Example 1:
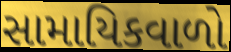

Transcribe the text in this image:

સામાયિકવાળો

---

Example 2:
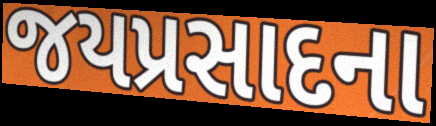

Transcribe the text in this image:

જયપ્રસાદના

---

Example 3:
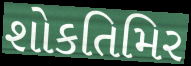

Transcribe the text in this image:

શોકતિમિર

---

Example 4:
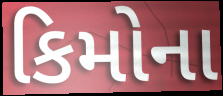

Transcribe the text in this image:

કિમોના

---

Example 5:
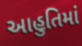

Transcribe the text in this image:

આહુતિમાં